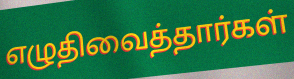
எழுதிவைத்தார்கள்